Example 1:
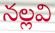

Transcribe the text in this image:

నల్లవి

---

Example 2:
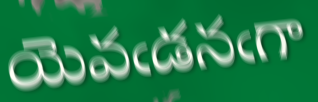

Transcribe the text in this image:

యెవఁడనఁగా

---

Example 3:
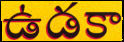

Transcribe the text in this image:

ఉడకా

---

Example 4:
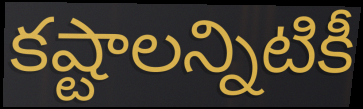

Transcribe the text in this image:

కష్టాలన్నిటికీ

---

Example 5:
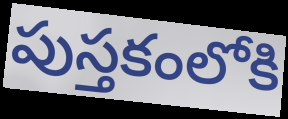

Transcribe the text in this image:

పుస్తకంలోకి